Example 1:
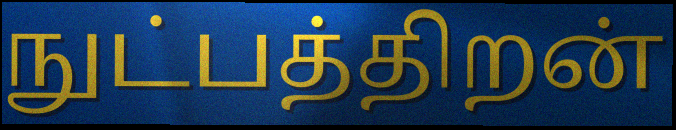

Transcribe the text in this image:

நுட்பத்திறன்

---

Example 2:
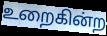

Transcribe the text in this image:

உறைகின்ற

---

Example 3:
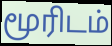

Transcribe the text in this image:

மூரிடம்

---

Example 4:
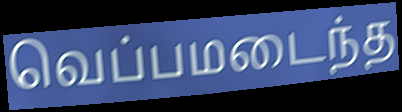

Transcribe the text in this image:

வெப்பமடைந்த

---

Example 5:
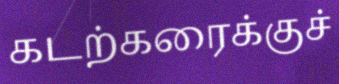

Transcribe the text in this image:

கடற்கரைக்குச்